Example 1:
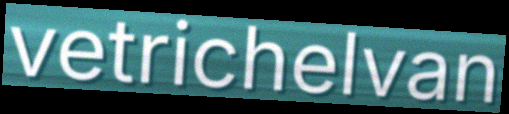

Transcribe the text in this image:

vetrichelvan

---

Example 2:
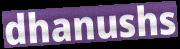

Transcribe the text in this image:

dhanushs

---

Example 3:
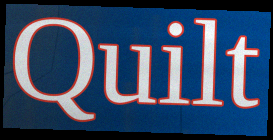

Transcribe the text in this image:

Quilt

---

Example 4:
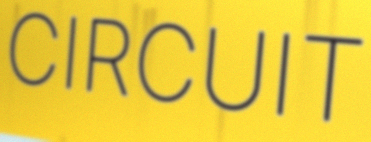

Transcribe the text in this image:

CIRCUIT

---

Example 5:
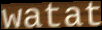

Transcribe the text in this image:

watat